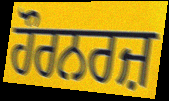
ਹੌਰਨਰਜ਼